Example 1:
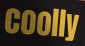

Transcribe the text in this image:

coolly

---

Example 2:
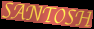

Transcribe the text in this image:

SANTOSH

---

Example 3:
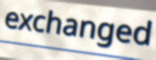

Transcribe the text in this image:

exchanged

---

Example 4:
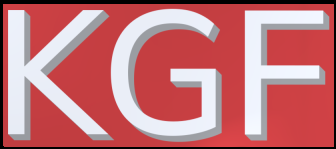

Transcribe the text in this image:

KGF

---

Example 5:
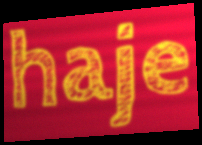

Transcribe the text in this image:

haje